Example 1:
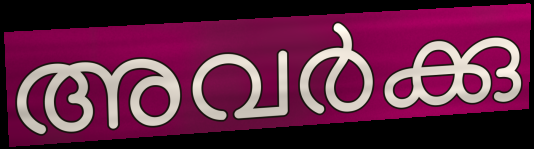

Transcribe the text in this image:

അവർക്കു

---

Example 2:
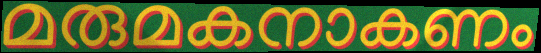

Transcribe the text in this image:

മരുമകനാകണം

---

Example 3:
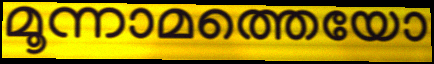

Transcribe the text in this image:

മൂന്നാമത്തെയോ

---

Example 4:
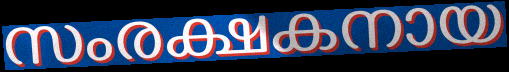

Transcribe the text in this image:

സംരക്ഷകനായ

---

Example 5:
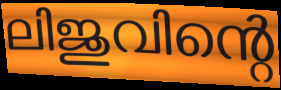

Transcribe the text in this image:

ലിജുവിന്റെ